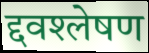
द्दवश्लेषण